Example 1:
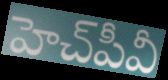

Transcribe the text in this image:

హెచ్‌పీవీ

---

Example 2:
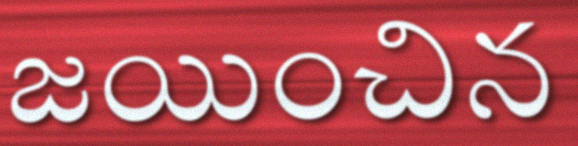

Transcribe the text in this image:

జయించిన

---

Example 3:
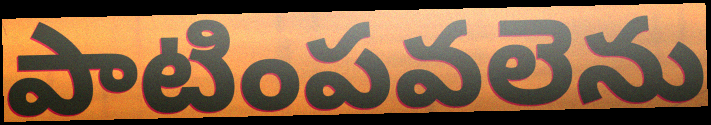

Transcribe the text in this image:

పాటింపవలెను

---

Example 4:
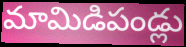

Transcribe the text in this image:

మామిడిపండ్లు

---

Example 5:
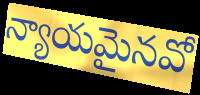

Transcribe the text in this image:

న్యాయమైనవో